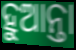
ହୁଆନ୍ତା